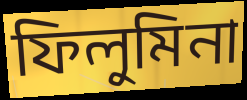
ফিলুমিনা